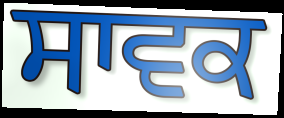
ਸਾਵਕ